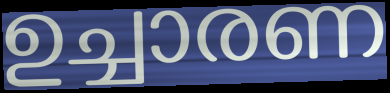
ഉച്ചാരണ